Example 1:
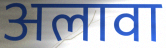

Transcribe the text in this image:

अलावा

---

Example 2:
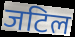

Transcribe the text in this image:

जटिल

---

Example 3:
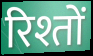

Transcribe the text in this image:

रिश्तों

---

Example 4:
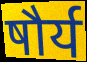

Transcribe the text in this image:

षौर्य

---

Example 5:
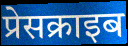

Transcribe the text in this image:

प्रेसक्राइब